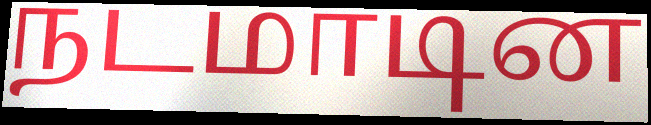
நடமாடின